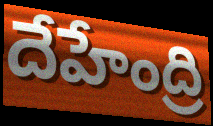
దేహేంద్రి